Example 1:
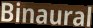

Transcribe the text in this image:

Binaural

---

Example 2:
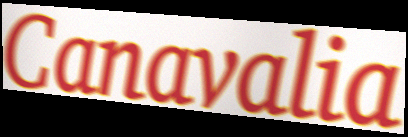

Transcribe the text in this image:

Canavalia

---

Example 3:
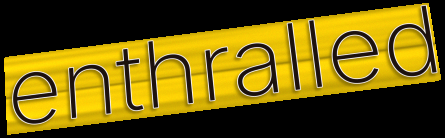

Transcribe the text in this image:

enthralled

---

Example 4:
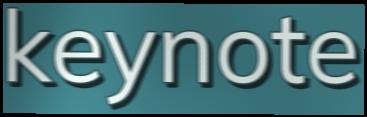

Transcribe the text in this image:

keynote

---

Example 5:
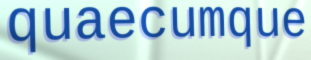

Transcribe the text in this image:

quaecumque